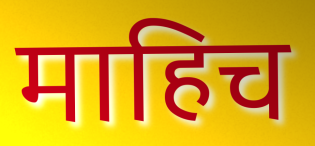
माहिच